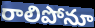
రాలిపోనూ